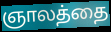
ஞாலத்தை